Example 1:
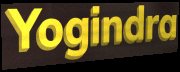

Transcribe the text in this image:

Yogindra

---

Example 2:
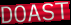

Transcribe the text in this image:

DOAST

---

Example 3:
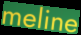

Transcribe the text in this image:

meline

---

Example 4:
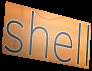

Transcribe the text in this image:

shell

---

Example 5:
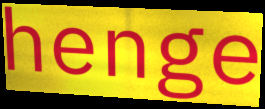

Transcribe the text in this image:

henge